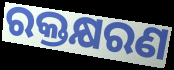
ରକ୍ତକ୍ଷରଣ